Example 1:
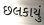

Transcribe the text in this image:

છલકાયું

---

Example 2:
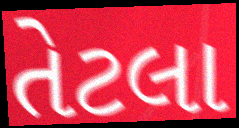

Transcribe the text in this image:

તેટલા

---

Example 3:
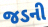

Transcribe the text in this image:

જડની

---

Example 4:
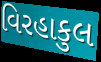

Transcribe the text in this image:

વિરહાકુલ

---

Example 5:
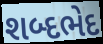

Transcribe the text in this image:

શબ્દભેદ